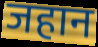
जहान